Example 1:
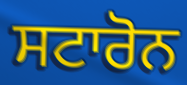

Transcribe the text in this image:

ਸਟਾਰੋਨ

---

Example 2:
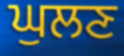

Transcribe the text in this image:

ਘੁਲਣ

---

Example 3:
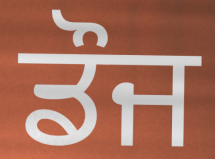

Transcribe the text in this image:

ਡੌਜ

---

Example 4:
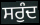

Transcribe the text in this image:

ਸਰੁੰਦ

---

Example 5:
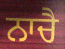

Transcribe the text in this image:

ਨਾਚੈ